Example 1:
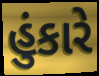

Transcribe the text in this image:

હુંકારે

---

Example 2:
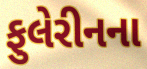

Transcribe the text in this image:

ફુલેરીનના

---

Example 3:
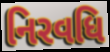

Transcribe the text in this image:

નિરવધિ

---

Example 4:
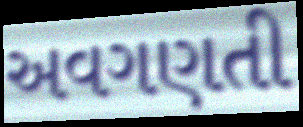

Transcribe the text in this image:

અવગણતી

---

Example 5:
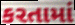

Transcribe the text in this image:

કરતામાં